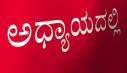
ಅಧ್ಯಾಯದಲ್ಲಿ